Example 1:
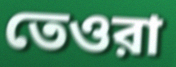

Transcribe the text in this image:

তেওরা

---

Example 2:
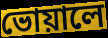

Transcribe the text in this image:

ভোয়ালে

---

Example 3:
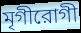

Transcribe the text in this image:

মৃগীরোগী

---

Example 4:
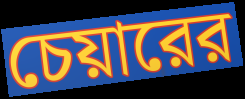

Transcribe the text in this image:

চেয়ারের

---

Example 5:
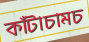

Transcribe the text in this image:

কাঁটাচামচ